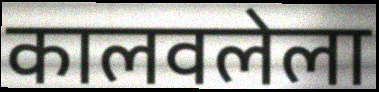
कालवलेला